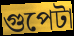
গুপেটা